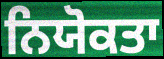
ਨਿਯੋਕਤਾ